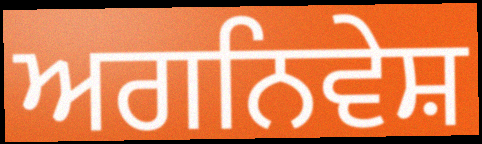
ਅਗਨਿਵੇਸ਼